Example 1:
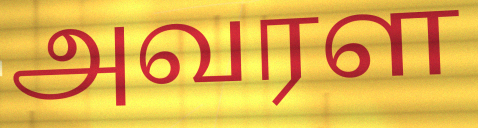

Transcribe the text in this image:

அவரள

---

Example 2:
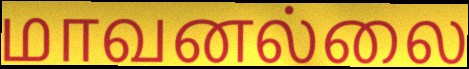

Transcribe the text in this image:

மாவனல்லை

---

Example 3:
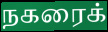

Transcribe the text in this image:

நகரைக்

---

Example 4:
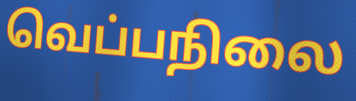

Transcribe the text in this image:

வெப்பநிலை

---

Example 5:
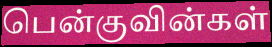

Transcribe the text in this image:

பென்குவின்கள்